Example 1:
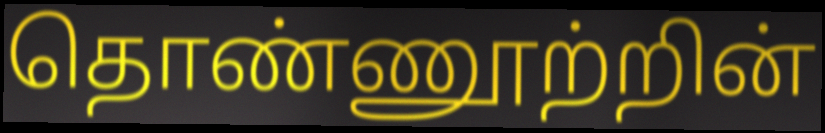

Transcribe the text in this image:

தொண்ணூற்றின்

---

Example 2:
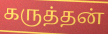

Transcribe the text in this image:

கருத்தன்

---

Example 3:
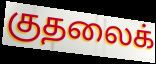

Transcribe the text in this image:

குதலைக்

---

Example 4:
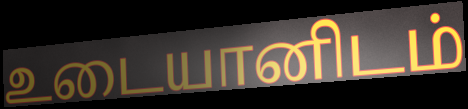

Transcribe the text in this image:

உடையானிடம்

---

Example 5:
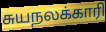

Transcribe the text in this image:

சுயநலக்காரி